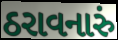
ઠરાવનારું